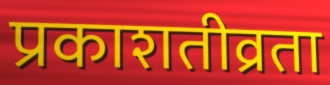
प्रकाशतीव्रता